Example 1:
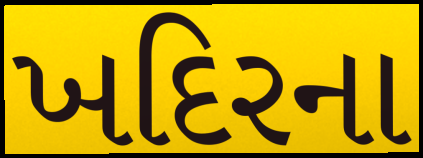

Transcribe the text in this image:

ખદિરના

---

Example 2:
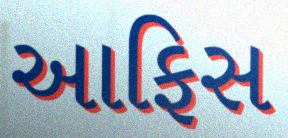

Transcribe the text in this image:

આફિસ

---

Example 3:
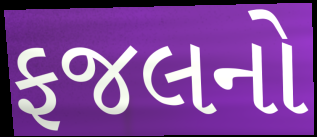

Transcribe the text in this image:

ફજલનો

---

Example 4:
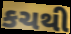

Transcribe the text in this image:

કચથી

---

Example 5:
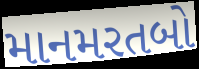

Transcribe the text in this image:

માનમરતબો